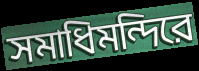
সমাধিমন্দিরে